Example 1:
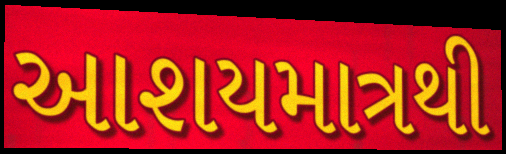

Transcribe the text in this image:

આશયમાત્રથી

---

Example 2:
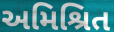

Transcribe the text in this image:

અમિશ્રિત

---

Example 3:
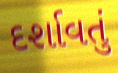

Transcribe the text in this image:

દર્શાવતું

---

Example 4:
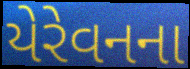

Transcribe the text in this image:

યેરેવનના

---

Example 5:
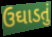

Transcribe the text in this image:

ઉઘાડતું